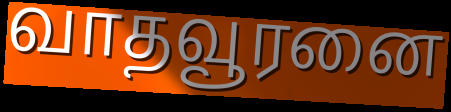
வாதவூரனை